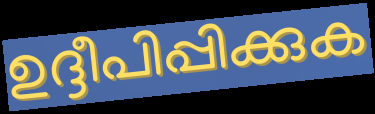
ഉദ്ദീപിപ്പിക്കുക